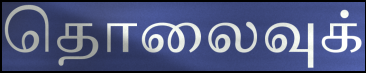
தொலைவுக்